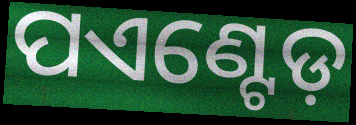
ପଏଣ୍ଟେଡ଼